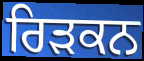
ਰਿੜਕਨ